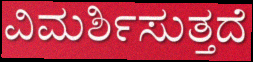
ವಿಮರ್ಶಿಸುತ್ತದೆ